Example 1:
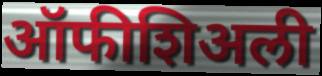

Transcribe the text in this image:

ऑफीशिअली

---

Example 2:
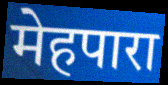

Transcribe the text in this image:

मेहपारा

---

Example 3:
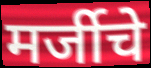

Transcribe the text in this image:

मर्जीचे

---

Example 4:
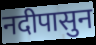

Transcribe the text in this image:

नदीपासुन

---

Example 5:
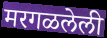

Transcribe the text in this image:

मरगळलेली